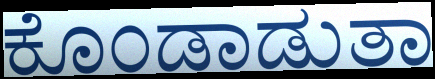
ಕೊಂಡಾಡುತಾ